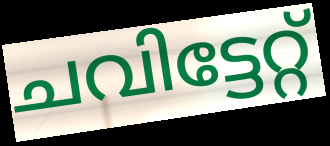
ചവിട്ടേറ്റ്